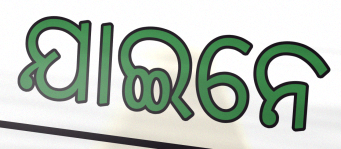
ଯାଇନେ